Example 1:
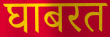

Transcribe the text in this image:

घाबरत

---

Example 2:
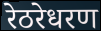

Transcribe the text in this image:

रेठरेधरण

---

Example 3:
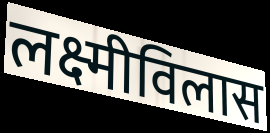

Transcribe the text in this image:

लक्ष्मीविलास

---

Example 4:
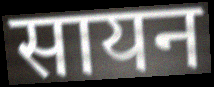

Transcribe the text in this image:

सायन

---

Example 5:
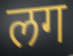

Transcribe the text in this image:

लग